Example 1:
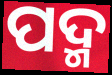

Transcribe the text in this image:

ପଦ୍ମ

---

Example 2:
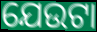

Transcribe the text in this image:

ଯେଉଟା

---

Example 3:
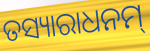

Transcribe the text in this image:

ତସ୍ୟାରାଧନମ୍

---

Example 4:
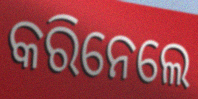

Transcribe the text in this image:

କରିନେଲେ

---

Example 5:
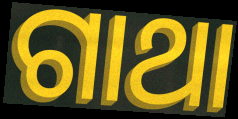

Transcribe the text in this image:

ଗାଥା